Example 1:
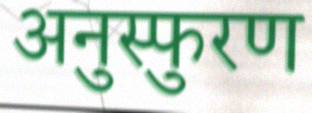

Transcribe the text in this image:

अनुस्फुरण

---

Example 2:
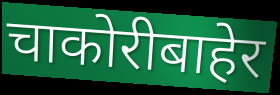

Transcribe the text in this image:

चाकोरीबाहेर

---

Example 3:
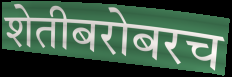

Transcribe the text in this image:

शेतीबरोबरच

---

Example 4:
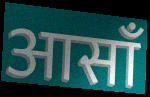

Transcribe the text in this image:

आसाँ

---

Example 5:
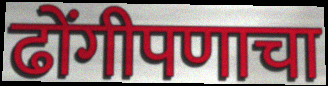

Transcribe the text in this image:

ढोंगीपणाचा